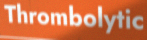
Thrombolytic